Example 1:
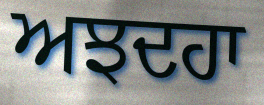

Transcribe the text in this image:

ਅਝਦਹਾ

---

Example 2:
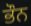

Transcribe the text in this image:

ਭੌਨ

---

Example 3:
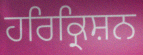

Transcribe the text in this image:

ਹਰਿਕ੍ਰਿਸ਼ਨ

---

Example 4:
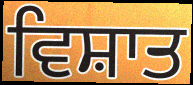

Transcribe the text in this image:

ਵਿਸ਼ਾਤ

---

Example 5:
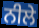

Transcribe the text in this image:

ਨੀਲੇ